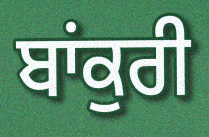
ਬਾਂਕੁਰੀ